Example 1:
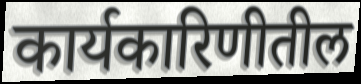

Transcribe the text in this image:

कार्यकारिणीतील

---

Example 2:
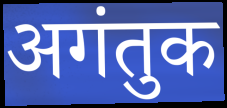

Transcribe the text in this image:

अगंतुक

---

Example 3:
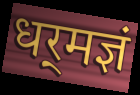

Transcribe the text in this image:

धर्मज्ञं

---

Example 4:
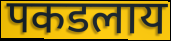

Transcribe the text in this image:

पकडलाय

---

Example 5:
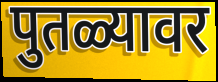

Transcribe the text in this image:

पुतळ्यावर